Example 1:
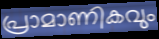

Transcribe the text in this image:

പ്രാമാണികവും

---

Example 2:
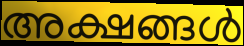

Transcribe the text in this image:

അക്ഷങ്ങൾ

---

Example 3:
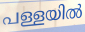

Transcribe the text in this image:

പള്ളയിൽ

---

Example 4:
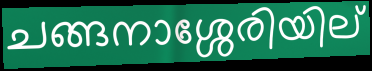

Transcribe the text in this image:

ചങ്ങനാശ്ശേരിയില്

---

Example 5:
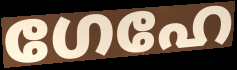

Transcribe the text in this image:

ഗേഹേ